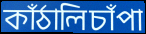
কাঁঠালিচাঁপা